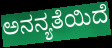
ಅನನ್ಯತೆಯಿದೆ